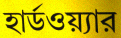
হার্ডওয়্যার